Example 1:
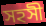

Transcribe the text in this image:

সহসী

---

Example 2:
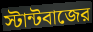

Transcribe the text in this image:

স্টান্টবাজের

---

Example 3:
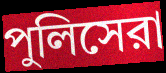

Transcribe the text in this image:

পুলিসেরা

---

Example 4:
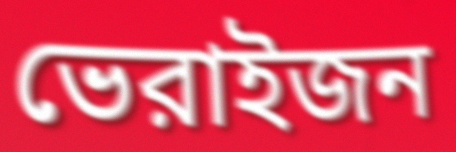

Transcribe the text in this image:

ভেরাইজন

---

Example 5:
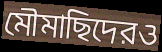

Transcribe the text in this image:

মৌমাছিদেরও